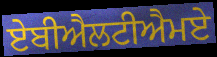
ਏਬੀਐਲਟੀਐਮਏ